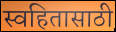
स्वहितासाठी